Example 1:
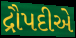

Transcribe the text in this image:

દ્રૌપદીએ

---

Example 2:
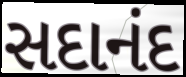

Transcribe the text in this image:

સદાનંદ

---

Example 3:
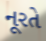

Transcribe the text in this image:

નૂરતે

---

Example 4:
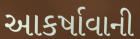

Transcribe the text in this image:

આકર્ષાવાની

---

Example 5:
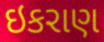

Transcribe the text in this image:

ઇકરાણ